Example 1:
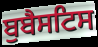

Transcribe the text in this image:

ਬੁਬੈਸਟਿਸ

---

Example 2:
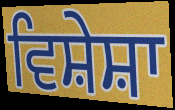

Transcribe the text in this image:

ਵਿਸ਼ੇਸ਼ਾ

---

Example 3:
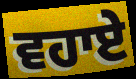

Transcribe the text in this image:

ਵਹਾਏ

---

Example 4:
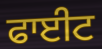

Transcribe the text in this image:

ਫਾਈਟ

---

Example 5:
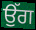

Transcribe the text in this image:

ਉੱਗ